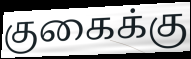
குகைக்கு